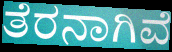
ತೆರನಾಗಿವೆ